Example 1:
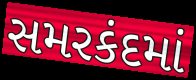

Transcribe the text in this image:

સમરકંદમાં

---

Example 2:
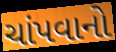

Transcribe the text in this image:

ચાંપવાનો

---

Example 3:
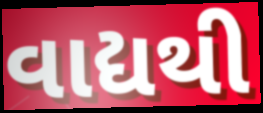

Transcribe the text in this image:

વાદ્યથી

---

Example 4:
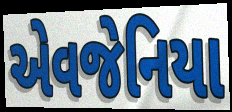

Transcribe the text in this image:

એવજેનિયા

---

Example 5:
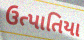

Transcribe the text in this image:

ઉત્પાતિયા